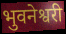
भुवनेश्वरी